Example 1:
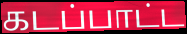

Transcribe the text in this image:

கடப்பாட்ட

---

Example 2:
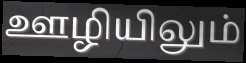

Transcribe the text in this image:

ஊழியிலும்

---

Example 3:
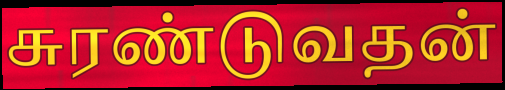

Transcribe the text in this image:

சுரண்டுவதன்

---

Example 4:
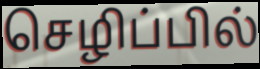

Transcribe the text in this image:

செழிப்பில்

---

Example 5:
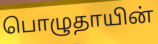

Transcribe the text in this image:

பொழுதாயின்